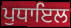
ਪੁਧਾਇਲ